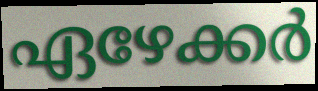
ഏഴേക്കർ